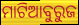
ମାଟିଆବୁରୁଜ